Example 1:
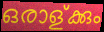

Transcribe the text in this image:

ഒരാള്ക്കും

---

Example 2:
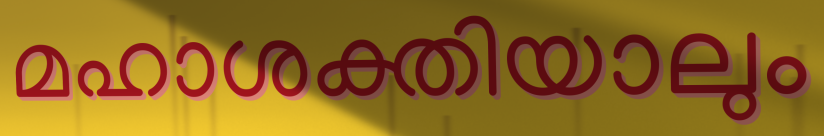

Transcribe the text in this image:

മഹാശക്തിയാലും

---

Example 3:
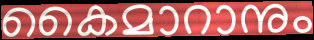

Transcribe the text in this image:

കൈമാറാനും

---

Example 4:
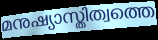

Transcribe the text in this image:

മനുഷ്യാസ്തിത്വത്തെ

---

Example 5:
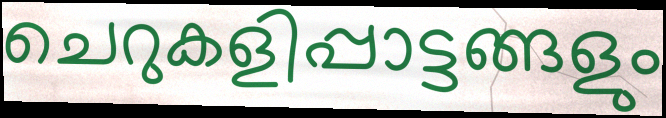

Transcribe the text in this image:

ചെറുകളിപ്പാട്ടങ്ങളും